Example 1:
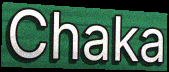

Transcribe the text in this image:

Chaka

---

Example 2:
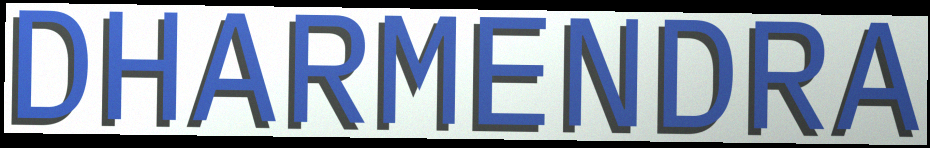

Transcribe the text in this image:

DHARMENDRA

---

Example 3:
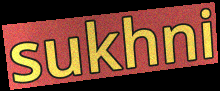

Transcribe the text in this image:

sukhni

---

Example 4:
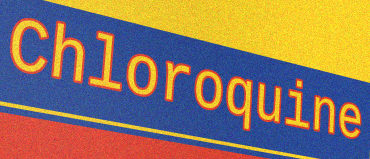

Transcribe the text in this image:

Chloroquine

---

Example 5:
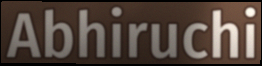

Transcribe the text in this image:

Abhiruchi